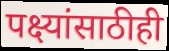
पक्ष्यांसाठीही